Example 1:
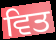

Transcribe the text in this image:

ਵਿਤ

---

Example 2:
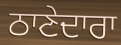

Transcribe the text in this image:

ਠਾਣੇਦਾਰਾ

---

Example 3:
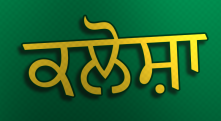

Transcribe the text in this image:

ਕਲੋਸ਼ਾ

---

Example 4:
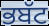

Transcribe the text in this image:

ਭਬੱਟ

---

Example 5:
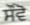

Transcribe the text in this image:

ਸੌਂਵੋ